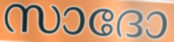
സാദോ